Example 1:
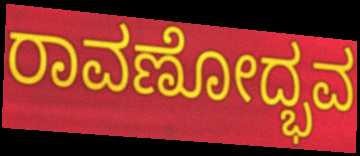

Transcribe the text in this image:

ರಾವಣೋದ್ಭವ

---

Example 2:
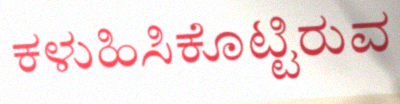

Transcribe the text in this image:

ಕಳುಹಿಸಿಕೊಟ್ಟಿರುವ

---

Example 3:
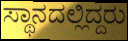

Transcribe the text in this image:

ಸ್ಥಾನದಲ್ಲಿದ್ದರು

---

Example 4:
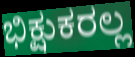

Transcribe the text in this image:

ಭಿಕ್ಷುಕರಲ್ಲ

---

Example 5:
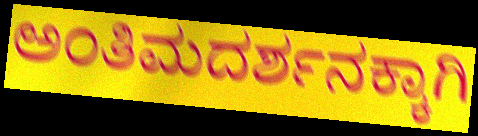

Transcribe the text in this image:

ಅಂತಿಮದರ್ಶನಕ್ಕಾಗಿ